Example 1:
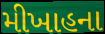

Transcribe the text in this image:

મીખાહના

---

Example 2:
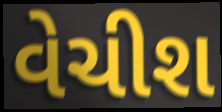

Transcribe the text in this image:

વેચીશ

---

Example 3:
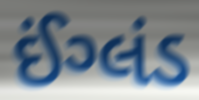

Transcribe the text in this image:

ઈંગ્લંડ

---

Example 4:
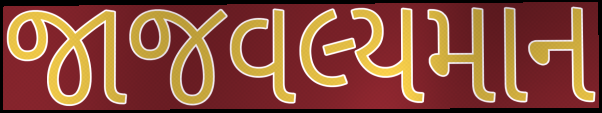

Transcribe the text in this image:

જાજવલ્યમાન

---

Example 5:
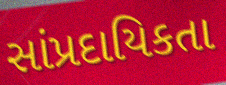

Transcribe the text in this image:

સાંપ્રદાયિકતા